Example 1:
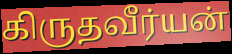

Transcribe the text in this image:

கிருதவீர்யன்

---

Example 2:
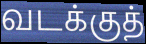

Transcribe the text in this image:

வடக்குத்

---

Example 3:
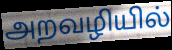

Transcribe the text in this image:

அறவழியில்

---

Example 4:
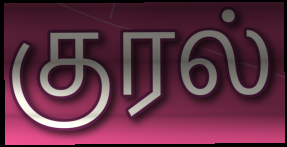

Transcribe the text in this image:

குரல்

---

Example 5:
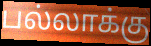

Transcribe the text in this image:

பல்லாக்கு